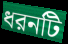
ধরনটি